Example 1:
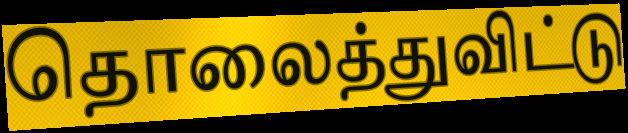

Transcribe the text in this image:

தொலைத்துவிட்டு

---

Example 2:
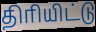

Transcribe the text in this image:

திரியிட்டு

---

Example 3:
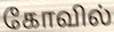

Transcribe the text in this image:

கோவில்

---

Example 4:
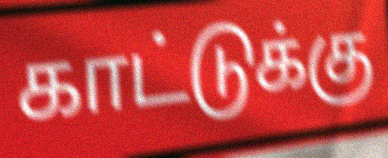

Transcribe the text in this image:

காட்டுக்கு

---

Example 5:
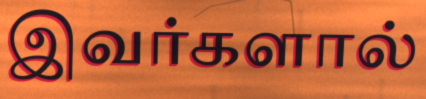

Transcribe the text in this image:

இவர்களால்